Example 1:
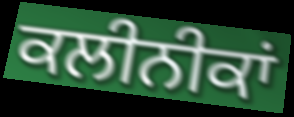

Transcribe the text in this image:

ਕਲੀਨੀਕਾਂ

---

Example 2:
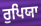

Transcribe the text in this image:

ਰੁਪਿਯਾ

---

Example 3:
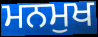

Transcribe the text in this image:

ਮਨਮੁਖ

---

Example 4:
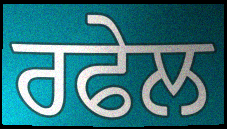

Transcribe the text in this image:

ਰਫੇਲ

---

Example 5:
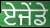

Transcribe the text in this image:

ਏਜੇਂਡੇ